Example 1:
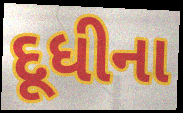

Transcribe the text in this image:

દૂધીના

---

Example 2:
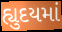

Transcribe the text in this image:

હ્યુદયમાં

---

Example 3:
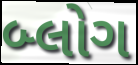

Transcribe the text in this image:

બ્લોગ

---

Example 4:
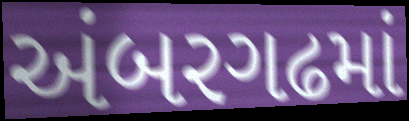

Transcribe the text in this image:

અંબરગઢમાં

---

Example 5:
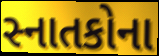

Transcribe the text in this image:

સ્નાતકોના